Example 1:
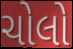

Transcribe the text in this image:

ચોલો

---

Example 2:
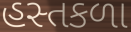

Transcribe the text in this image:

હસ્તકળા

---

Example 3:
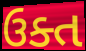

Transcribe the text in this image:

ઉક્ત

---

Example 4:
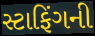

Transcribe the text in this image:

સ્ટાફિંગની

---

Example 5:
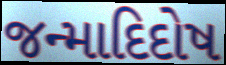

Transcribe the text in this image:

જન્માદિદોષ